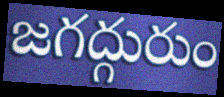
జగద్గురుం